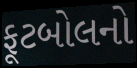
ફૂટબોલનો